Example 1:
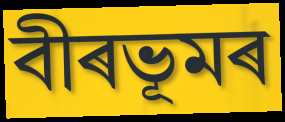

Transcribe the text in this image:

বীৰভূমৰ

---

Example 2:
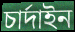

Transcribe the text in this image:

চাৰ্দাইন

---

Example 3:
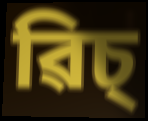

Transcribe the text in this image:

ৱিচ্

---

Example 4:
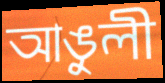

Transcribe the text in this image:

আঙুলী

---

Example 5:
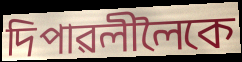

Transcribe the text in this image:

দিপাৱলীলৈকে